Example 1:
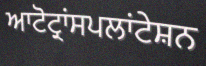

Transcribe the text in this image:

ਆਟੋਟ੍ਰਾਂਸਪਲਾਂਟੇਸ਼ਨ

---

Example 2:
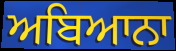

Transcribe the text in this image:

ਅਬਿਆਨਾ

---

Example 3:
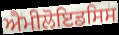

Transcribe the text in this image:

ਐਮੀਲੋਇਡਸਿਸ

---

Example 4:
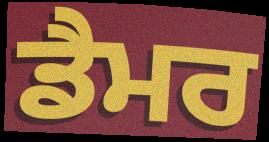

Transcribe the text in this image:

ਡੈਮਰ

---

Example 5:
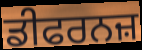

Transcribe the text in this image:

ਡੀਫਰਨਜ਼